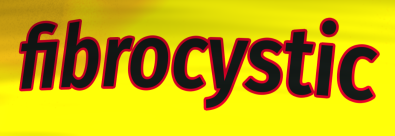
fibrocystic